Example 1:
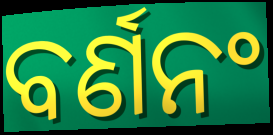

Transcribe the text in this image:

ବର୍ଣନଂ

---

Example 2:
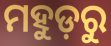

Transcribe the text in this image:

ମହୁଡ଼ରୁ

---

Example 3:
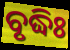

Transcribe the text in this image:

ବୃଦ୍ଧିଃ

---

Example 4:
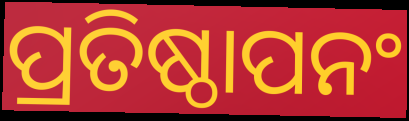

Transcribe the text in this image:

ପ୍ରତିଷ୍ଠାପନଂ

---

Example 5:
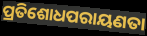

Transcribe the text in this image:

ପ୍ରତିଶୋଧପରାୟଣତା